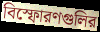
বিস্ফোরণগুলির